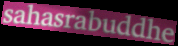
sahasrabuddhe